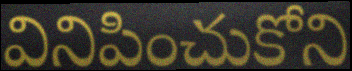
వినిపించుకోని